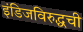
इंडिजविरुद्धची